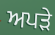
ਅਪੜੇ